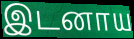
இடனாய